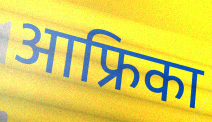
आफ्रिका